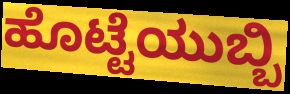
ಹೊಟ್ಟೆಯುಬ್ಬಿ